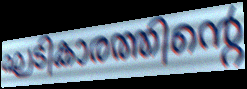
ഘടികാരത്തിന്റെ